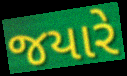
જયારે